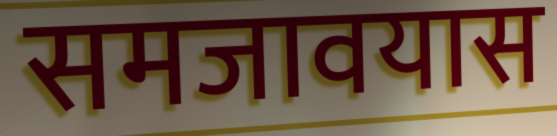
समजावयास